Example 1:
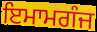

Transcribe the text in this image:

ਇਮਾਮਗੰਜ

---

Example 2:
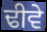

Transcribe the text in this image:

ਢੀਵੇ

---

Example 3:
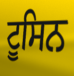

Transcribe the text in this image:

ਟੂਸਿਨ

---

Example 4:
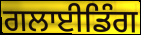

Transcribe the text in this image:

ਗਲਾਈਡਿੰਗ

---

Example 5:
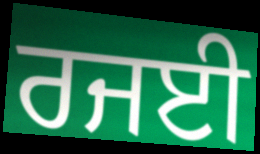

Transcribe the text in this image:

ਰਜਈ